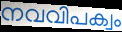
നവവിപക്വം